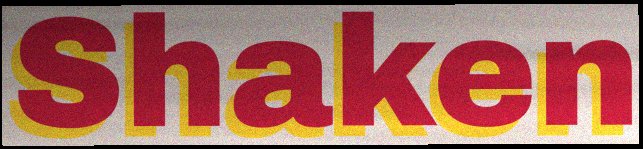
Shaken